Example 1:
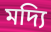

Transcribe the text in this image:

মদ্যি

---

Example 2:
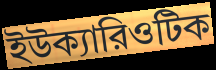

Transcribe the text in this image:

ইউক্যারিওটিক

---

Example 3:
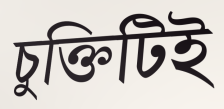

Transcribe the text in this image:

চুক্তিটিই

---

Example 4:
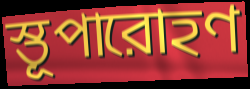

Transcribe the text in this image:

স্তূপারোহণ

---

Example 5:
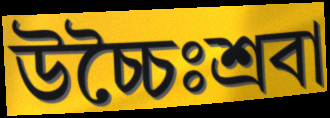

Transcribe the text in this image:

উচ্চৈঃশ্রবা